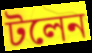
টলেন